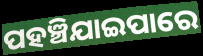
ପହଞ୍ଚିଯାଇପାରେ